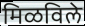
मिळविले